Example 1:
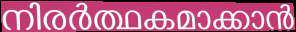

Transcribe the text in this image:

നിരർത്ഥകമാക്കാൻ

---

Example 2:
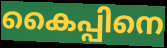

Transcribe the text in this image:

കൈപ്പിനെ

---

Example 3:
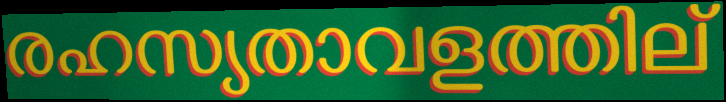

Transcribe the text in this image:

രഹസ്യതാവളത്തില്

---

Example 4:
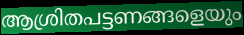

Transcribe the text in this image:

ആശ്രിതപട്ടണങ്ങളെയും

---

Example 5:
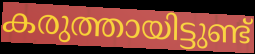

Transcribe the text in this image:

കരുത്തായിട്ടുണ്ട്